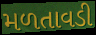
મળતાવડી